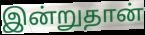
இன்றுதான்